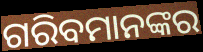
ଗରିବମାନଙ୍କର